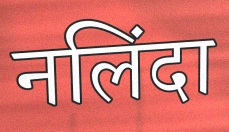
नलिंदा